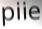
piie